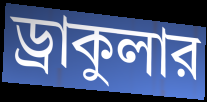
ড্রাকুলার